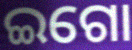
ଇଗୋ